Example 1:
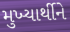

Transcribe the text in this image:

મુખ્યાર્થીને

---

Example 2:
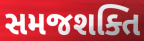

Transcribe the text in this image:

સમજશક્તિ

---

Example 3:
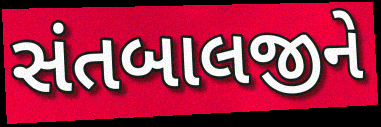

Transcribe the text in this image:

સંતબાલજીને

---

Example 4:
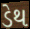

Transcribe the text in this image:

ડેથ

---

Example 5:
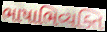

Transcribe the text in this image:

ભાષાભિવ્યક્તિ